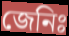
জেনিঃ